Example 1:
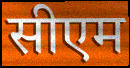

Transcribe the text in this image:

सीएम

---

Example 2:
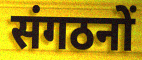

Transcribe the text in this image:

संगठनों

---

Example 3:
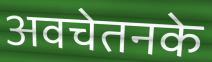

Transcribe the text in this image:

अवचेतनके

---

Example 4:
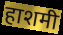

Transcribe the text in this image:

हाशमी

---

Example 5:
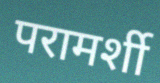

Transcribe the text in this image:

परामर्शी